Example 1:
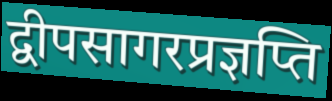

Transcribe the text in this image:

द्वीपसागरप्रज्ञप्ति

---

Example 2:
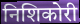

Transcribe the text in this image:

निशिकोरी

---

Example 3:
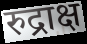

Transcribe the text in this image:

रुद्राक्ष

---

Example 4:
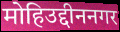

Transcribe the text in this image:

मोहिउद्दीननगर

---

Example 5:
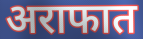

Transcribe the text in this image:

अराफात